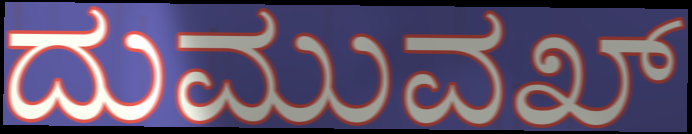
ದುಮುವಖ್